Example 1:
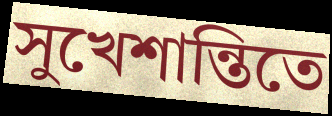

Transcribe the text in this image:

সুখেশান্তিতে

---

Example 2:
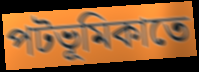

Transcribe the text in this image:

পটভূমিকাতে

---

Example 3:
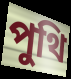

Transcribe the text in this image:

পুথি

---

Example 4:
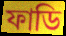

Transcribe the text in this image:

ফাডি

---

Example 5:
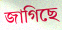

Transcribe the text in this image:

জাগিছে